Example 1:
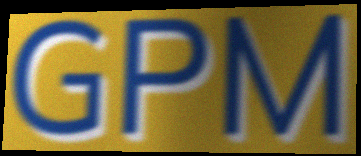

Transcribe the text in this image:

GPM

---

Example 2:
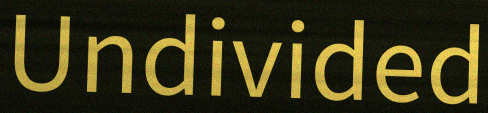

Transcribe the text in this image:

Undivided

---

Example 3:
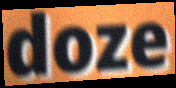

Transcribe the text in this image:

doze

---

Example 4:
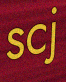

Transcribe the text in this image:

scj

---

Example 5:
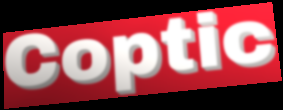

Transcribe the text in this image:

Coptic